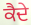
ਕੈਦੇ